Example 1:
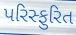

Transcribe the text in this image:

પરિસ્ફુરિત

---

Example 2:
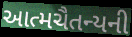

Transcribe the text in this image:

આત્મચૈતન્યની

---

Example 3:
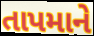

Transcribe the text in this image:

તાપમાને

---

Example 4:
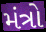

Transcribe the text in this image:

મંત્રો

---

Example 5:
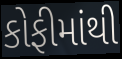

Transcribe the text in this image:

કોફીમાંથી